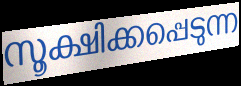
സൂക്ഷിക്കപ്പെടുന്ന